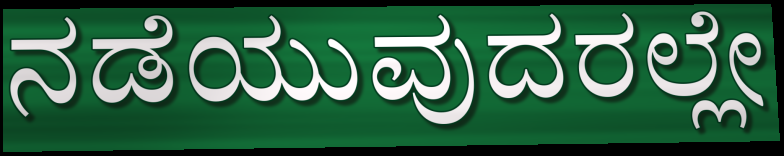
ನಡೆಯುವುದರಲ್ಲೇ